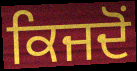
ਕਿਜਦੋਂ